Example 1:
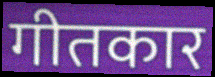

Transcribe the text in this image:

गीतकार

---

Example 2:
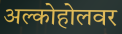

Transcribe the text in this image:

अल्कोहोलवर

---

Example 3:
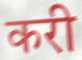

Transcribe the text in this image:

करी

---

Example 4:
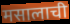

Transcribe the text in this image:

मसालाची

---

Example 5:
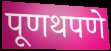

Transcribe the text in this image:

पूणथपणे